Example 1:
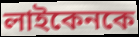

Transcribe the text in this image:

লাইকেনকে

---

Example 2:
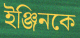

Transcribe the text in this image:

ইঞ্জিনকে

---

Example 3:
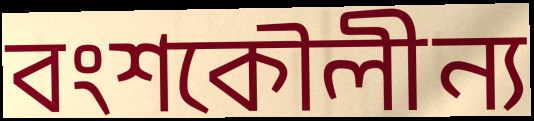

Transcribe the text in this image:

বংশকৌলীন্য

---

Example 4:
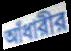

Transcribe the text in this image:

আঁধারীর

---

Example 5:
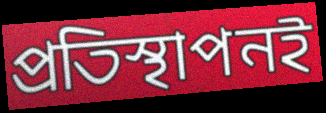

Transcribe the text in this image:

প্রতিস্থাপনই